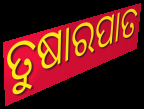
ତୁଷାରପାତ